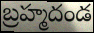
బ్రహ్మదండ